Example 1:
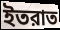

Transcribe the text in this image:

ইতরাত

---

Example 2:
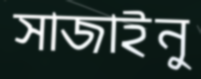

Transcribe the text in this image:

সাজাইনু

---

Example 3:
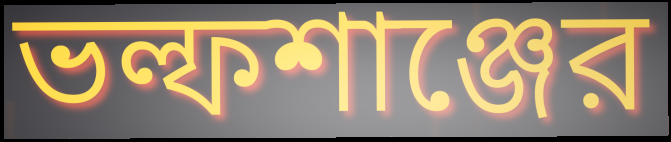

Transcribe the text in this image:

ভল্ফশাঞ্জের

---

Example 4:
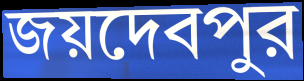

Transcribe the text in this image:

জয়দেবপুর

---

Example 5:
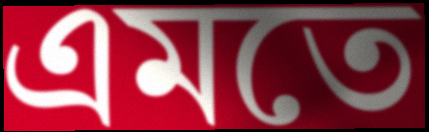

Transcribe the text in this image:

এমতে